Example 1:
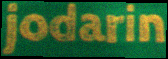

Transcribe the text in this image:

jodarin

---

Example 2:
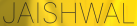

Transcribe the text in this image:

JAISHWAL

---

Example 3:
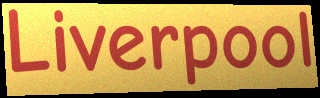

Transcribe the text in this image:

Liverpool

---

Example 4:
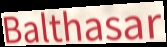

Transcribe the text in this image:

Balthasar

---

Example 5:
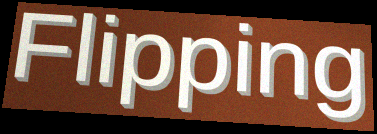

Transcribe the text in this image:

Flipping